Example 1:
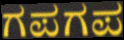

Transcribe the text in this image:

ಗಪಗಪ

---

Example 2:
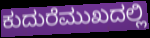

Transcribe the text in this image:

ಕುದುರೆಮುಖದಲ್ಲಿ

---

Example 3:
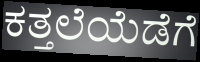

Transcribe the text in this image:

ಕತ್ತಲೆಯೆಡೆಗೆ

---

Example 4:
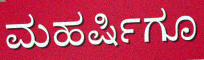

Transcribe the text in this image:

ಮಹರ್ಷಿಗೂ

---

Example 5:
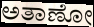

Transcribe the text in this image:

ಅತಾಣೋ